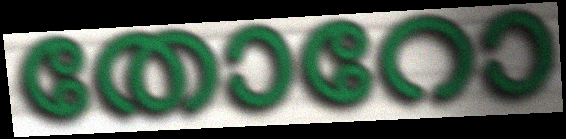
തോറോ